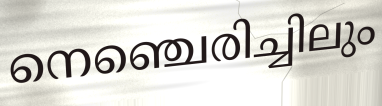
നെഞ്ചെരിച്ചിലും